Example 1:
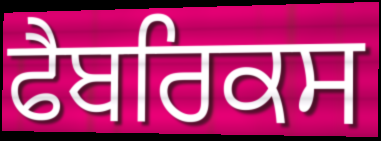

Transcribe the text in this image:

ਫੈਬਰਿਕਸ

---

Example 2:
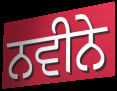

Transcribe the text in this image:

ਨਵੀਨੇ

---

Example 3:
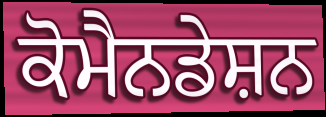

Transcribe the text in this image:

ਕੋਮੈਨਡੇਸ਼ਨ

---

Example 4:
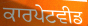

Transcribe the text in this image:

ਕਾਰਪੇਟਵੀਡ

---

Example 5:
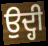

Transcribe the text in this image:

ਉਦ੍ਹੀ